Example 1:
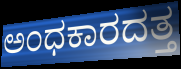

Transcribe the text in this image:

ಅಂಧಕಾರದತ್ತ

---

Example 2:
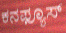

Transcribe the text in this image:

ಕನಫ್ಯೂಸ್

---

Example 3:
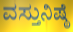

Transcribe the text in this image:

ವಸ್ತುನಿಷ್ಠೆ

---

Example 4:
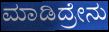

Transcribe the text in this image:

ಮಾಡಿದ್ರೇನು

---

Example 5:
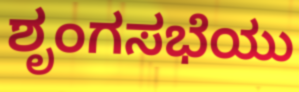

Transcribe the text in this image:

ಶೃಂಗಸಭೆಯು